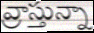
వ్రాస్తున్నా